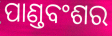
ପାଣ୍ଡବଂଶର